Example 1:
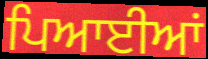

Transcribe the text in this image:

ਪਿਆਈਆਂ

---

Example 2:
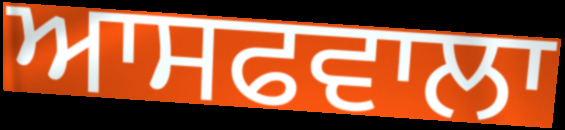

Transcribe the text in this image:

ਆਸਫਵਾਲਾ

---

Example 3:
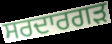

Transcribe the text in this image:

ਸਰਦਾਰਗੜ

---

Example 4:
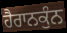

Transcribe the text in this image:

ਹੈਰਾਨਕੁੰਨ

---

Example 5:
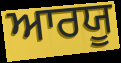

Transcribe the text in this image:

ਆਰਯੂ